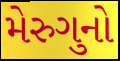
મેરુગુનો